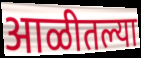
आळीतल्या